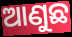
ଆଣୁଛ